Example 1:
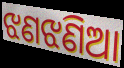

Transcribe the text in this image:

ଝଣଝଣିଆ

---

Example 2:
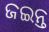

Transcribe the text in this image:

ଜଇନ୍ତ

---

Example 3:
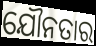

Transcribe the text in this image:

ଯୌନତାର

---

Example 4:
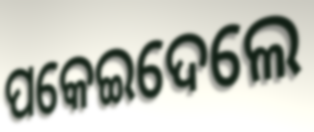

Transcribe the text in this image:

ପକେଇଦେଲେ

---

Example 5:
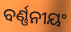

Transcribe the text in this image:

ବର୍ଣ୍ଣନୀୟଂ